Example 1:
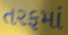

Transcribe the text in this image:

તરફમાં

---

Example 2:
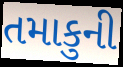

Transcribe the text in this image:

તમાકુની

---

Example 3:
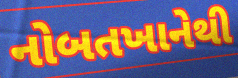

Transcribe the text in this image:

નોબતખાનેથી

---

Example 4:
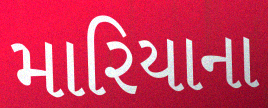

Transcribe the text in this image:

મારિયાના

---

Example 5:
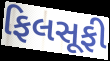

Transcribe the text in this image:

ફિલસૂફી